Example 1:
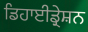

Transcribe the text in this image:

ਡਿਹਾਈਡ੍ਰੇਸ਼ਨ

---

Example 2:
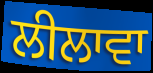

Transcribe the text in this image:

ਲੀਲਾਵਾ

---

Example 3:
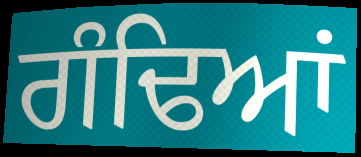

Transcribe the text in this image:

ਗੰਢਿਆਂ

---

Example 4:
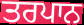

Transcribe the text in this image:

ਤਰਪਾਨ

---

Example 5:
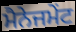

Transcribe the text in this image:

ਮੈਨੇਜਮੇੰਟ